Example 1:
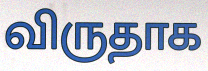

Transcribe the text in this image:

விருதாக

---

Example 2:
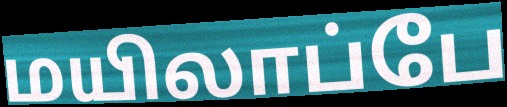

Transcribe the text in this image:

மயிலாப்பே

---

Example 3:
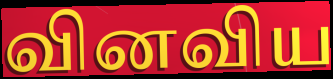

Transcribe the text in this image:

வினவிய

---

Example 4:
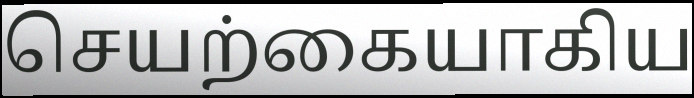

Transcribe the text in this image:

செயற்கையாகிய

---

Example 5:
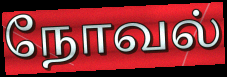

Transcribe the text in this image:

நோவல்